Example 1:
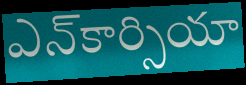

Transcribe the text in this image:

ఎన్‌కార్సియా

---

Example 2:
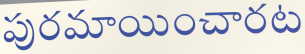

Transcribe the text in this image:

పురమాయించారట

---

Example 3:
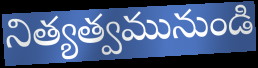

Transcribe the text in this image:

నిత్యత్వమునుండి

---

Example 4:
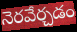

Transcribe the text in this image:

నెరవేర్చడం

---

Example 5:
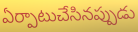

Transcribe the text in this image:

ఏర్పాటుచేసినప్పుడు